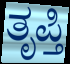
ತೃಪ್ತಿ